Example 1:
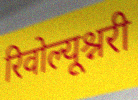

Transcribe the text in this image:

रिवोल्यूश्नरी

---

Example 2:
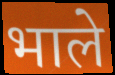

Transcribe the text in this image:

भाले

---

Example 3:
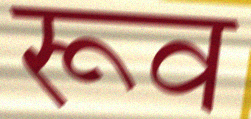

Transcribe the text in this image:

रूव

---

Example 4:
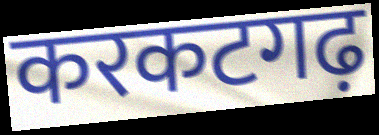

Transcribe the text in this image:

करकटगढ़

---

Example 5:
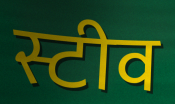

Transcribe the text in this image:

स्टीव